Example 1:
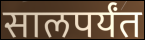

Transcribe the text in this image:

सालपर्यंत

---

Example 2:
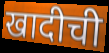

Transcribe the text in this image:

खादीची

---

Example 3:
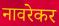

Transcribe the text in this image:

नावरेकर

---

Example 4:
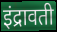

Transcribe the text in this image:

इंद्रावती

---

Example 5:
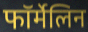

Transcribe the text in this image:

फॉर्मेलिन